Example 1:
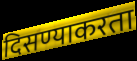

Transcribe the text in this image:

दिसण्याकरता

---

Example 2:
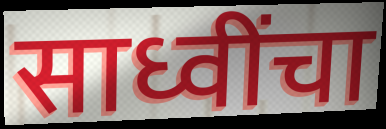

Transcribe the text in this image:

साध्वींचा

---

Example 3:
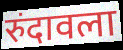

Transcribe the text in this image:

रुंदावला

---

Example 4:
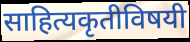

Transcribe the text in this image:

साहित्यकृतीविषयी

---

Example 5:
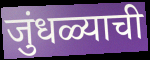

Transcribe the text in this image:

जुंधळ्याची